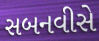
સબનવીસે